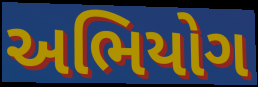
અભિયોગ